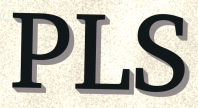
PLS